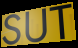
SUT